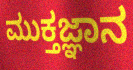
ಮುಕ್ತಜ್ಞಾನ